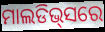
ମାଲଡିଭ୍‌ସରେ